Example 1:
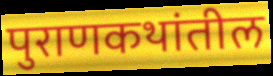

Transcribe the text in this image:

पुराणकथांतील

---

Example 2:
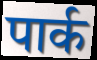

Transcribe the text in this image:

पार्क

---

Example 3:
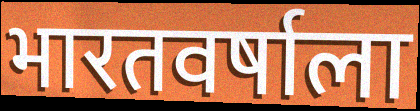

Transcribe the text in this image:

भारतवर्षाला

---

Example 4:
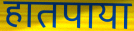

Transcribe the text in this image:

हातपाया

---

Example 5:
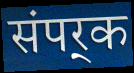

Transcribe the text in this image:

संपर्क